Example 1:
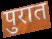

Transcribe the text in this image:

पुरात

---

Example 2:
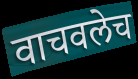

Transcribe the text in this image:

वाचवलेच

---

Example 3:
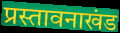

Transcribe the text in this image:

प्रस्तावनाखंड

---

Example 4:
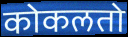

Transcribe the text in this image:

कोकलतो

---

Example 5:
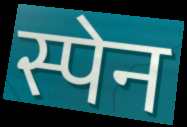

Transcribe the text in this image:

स्पेन